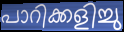
പാറിക്കളിച്ചു